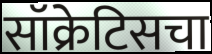
सॉक्रेटिसचा